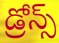
డ్రోన్స్